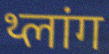
थ्लांग